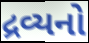
દ્રવ્યનો